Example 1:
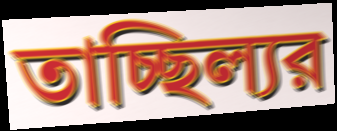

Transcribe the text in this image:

তাচ্ছিল্যর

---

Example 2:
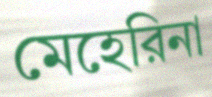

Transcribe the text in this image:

মেহেরিনা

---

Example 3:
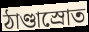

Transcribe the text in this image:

ঠাণ্ডাস্রোত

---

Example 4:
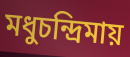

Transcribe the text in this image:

মধুচন্দ্রিমায়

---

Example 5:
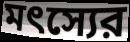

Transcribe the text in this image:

মৎস্যের